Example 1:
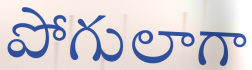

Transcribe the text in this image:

పోగులాగా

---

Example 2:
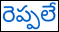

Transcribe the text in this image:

రెప్పలే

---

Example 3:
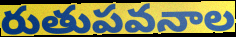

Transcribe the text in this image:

రుతుపవనాల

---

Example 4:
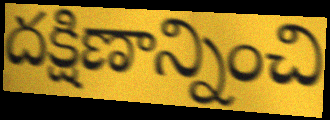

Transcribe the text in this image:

దక్షిణాన్నించి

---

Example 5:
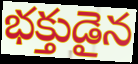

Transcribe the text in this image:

భక్తుడైన